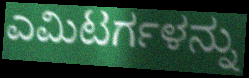
ಎಮಿಟರ್ಗಳನ್ನು